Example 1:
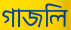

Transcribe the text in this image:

গাজলি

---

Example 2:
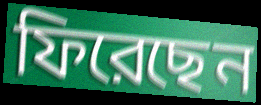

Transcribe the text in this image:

ফিরেছেন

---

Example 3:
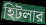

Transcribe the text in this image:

হিটলার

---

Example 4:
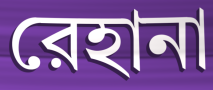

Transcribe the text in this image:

রেহানা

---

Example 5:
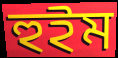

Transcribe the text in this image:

হুইম